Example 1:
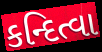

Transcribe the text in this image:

કન્દિત્વા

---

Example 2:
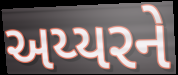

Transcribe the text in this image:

અય્યરને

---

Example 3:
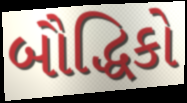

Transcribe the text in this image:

બૌદ્ધિકો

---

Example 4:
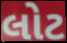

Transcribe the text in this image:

લોટ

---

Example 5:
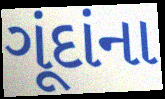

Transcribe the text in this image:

ગૂંદાંના